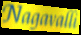
Nagavalli